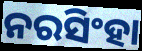
ନରସିଂହା